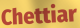
Chettiar